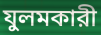
যুলমকারী